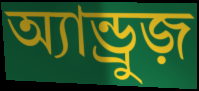
অ্যান্ড্রুজ়